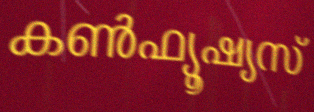
കൺഫ്യൂഷ്യസ്